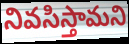
నివసిస్తామని